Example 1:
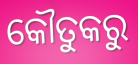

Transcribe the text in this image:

କୌତୁକରୁ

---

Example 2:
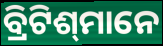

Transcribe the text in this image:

ବ୍ରିଟିଶ୍‍ମାନେ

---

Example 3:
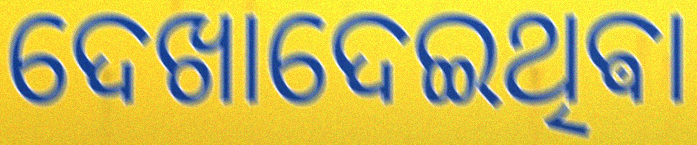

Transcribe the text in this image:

ଦେଖାଦେଇଥିଵା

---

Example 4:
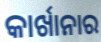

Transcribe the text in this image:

କାର୍ଖାନାର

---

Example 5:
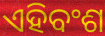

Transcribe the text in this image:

ଏହିବଂଶ